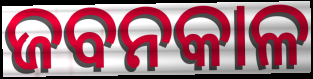
ଜବନକାଳ